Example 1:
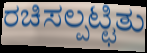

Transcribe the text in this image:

ರಚಿಸಲ್ಪಟ್ಟಿತು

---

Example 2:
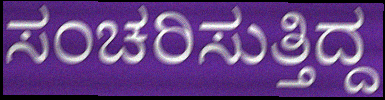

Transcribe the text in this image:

ಸಂಚರಿಸುತ್ತಿದ್ದ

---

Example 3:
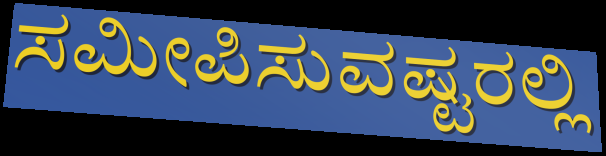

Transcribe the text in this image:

ಸಮೀಪಿಸುವಷ್ಟರಲ್ಲಿ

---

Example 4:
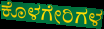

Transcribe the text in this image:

ಕೊಳಗೇರಿಗಳ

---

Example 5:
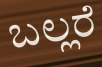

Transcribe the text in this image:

ಬಲ್ಲರೆ